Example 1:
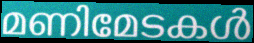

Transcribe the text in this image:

മണിമേടകൾ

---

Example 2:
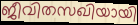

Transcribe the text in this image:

ജീവിതസഖിയായി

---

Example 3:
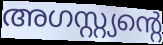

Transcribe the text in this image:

അഗസ്റ്റ്യന്റെ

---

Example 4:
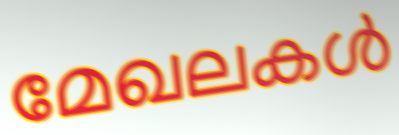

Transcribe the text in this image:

മേഖലകൾ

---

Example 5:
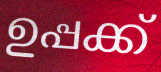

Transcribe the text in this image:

ഉപ്പക്ക്